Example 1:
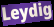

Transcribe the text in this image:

Leydig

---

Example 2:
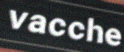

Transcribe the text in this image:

vacche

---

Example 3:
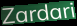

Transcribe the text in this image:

Zardari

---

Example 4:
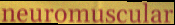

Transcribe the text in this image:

neuromuscular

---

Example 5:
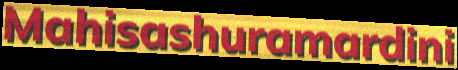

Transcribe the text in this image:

Mahisashuramardini